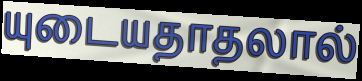
யுடையதாதலால்